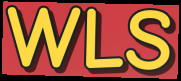
WLS